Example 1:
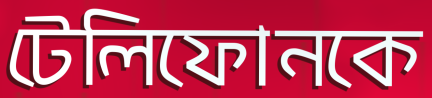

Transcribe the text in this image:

টেলিফোনকে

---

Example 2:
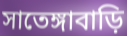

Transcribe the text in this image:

সাতেঙ্গাবাড়ি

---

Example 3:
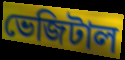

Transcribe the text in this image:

ভেজিটাল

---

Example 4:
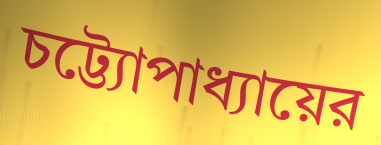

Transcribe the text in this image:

চট্ট্যোপাধ্যায়ের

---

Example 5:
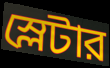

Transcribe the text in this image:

স্লেটার